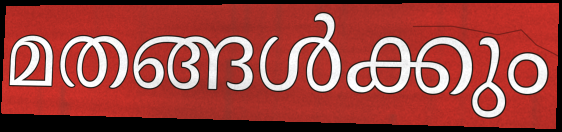
മതങ്ങൾക്കും